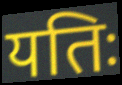
यतिः